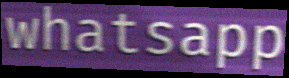
whatsapp